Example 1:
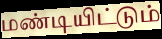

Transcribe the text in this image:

மண்டியிட்டும்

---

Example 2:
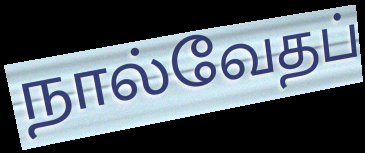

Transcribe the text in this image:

நால்வேதப்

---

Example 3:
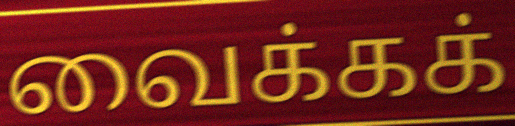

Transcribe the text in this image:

வைக்கக்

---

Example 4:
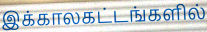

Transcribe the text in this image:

இக்காலகட்டங்களில்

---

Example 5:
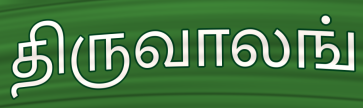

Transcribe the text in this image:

திருவாலங்